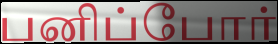
பனிப்போர்